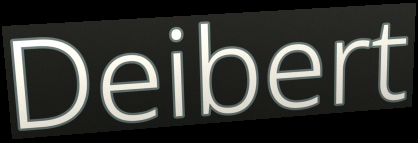
Deibert